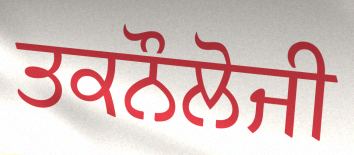
ਤਕਨੌਲੋਜੀ